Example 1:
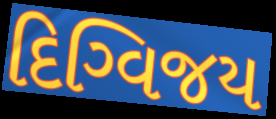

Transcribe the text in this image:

દિગ્વિજય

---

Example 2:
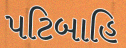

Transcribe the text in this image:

પટિબાહિ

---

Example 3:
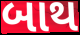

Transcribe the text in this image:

બાથ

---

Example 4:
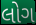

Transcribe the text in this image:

લોગ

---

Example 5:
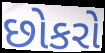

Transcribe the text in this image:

છોકરો